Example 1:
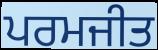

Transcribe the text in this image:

ਪਰਮਜੀਤ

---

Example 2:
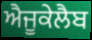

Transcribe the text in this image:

ਐਜੂਕੇਲੈਬ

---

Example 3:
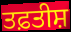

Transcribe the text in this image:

ਤਫ਼ਤੀਸ਼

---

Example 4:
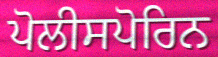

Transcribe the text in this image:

ਪੋਲੀਸਪੋਰਿਨ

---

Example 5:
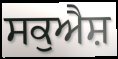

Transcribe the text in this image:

ਸਕੁਐਸ਼